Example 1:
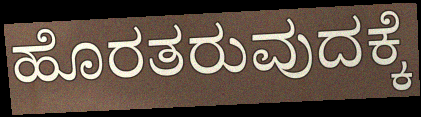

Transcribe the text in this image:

ಹೊರತರುವುದಕ್ಕೆ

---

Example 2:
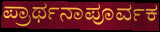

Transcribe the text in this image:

ಪ್ರಾರ್ಥನಾಪೂರ್ವಕ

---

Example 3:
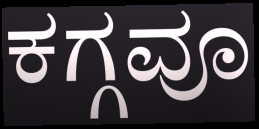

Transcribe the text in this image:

ಕಗ್ಗವೂ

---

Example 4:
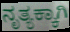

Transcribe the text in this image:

ನೃತ್ಯಕ್ಕಾಗಿ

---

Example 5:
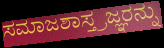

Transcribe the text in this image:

ಸಮಾಜಶಾಸ್ತ್ರಜ್ಞರನ್ನು